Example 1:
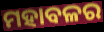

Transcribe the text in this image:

ମହାବଳର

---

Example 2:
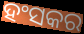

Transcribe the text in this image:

ହଂସକର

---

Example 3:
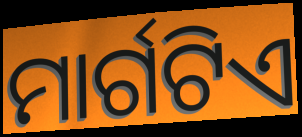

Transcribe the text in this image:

ମାର୍ଗଟିଏ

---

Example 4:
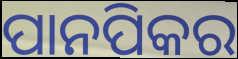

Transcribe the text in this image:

ପାନପିକର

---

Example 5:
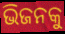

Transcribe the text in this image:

ଭିଜନକୁ